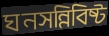
ঘনসন্নিবিষ্ট